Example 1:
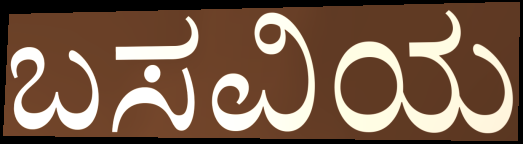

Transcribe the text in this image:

ಬಸವಿಯ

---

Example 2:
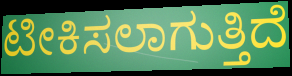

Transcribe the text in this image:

ಟೀಕಿಸಲಾಗುತ್ತಿದೆ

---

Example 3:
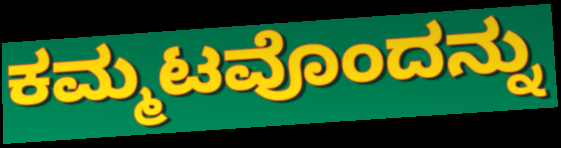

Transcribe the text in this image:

ಕಮ್ಮಟವೊಂದನ್ನು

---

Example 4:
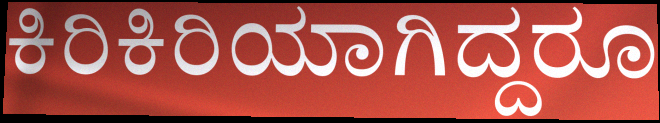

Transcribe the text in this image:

ಕಿರಿಕಿರಿಯಾಗಿದ್ದರೂ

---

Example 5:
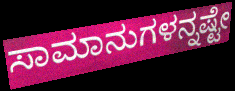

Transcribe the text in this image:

ಸಾಮಾನುಗಳನ್ನಷ್ಟೇ